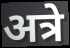
अत्रे